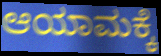
ಆಯಾಮಕ್ಕೆ